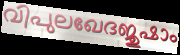
വിപുലഖേദജുഷാം